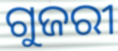
ଗୁଜରୀ